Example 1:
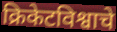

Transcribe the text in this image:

क्रिकेटविश्वाचे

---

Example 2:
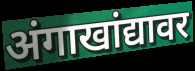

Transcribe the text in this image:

अंगाखांद्यावर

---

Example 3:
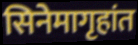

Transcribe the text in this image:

सिनेमागृहांत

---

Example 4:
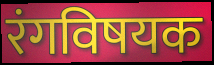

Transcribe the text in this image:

रंगविषयक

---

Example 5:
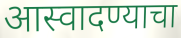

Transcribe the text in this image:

आस्वादण्याचा